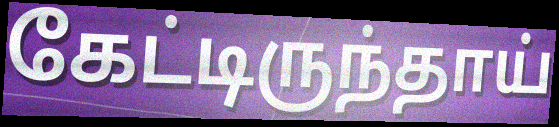
கேட்டிருந்தாய்